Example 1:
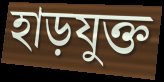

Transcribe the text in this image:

হাড়যুক্ত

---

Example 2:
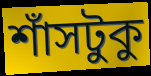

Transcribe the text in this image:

শাঁসটুকু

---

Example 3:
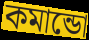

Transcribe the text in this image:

কমান্ডো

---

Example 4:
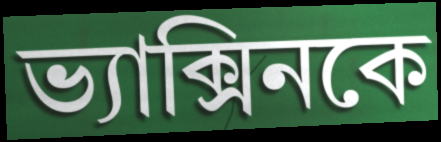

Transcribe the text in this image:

ভ্যাক্সিনকে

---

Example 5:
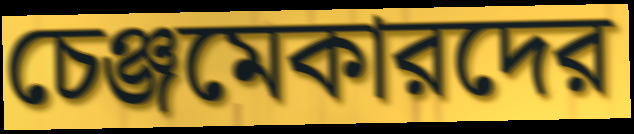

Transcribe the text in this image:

চেঞ্জমেকারদের